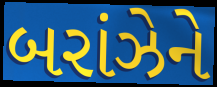
બરાંઝેને